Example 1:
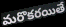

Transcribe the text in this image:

మరొకరయితే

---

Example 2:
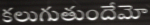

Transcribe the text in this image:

కలుగుతుందేమో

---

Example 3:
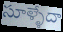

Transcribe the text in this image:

సూళ్ళేదా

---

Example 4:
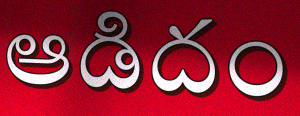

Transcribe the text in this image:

ఆడిదం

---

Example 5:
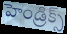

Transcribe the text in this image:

హెండ్రిక్స్